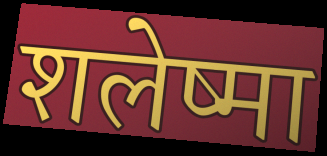
शलेष्मा